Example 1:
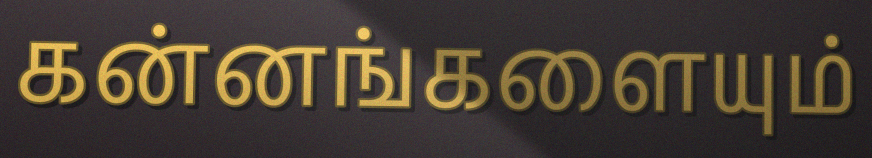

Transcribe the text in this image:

கன்னங்களையும்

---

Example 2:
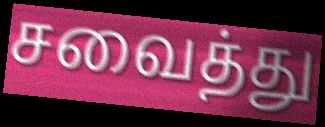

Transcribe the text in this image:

சவைத்து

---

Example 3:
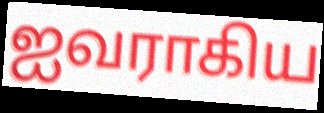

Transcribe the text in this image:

ஐவராகிய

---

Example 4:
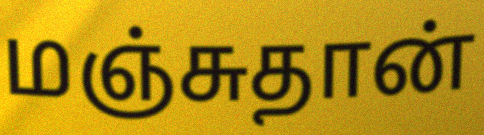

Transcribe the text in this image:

மஞ்சுதான்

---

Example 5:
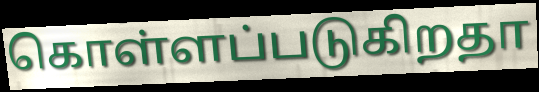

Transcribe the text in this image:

கொள்ளப்படுகிறதா